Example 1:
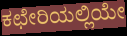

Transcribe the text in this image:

ಕಛೇರಿಯಲ್ಲಿಯೇ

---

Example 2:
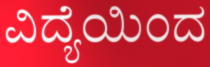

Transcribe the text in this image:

ವಿದ್ಯೆಯಿಂದ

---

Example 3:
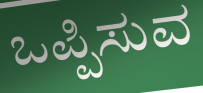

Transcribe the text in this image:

ಒಪ್ಪಿಸುವ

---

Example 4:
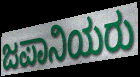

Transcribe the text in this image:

ಜಪಾನಿಯರು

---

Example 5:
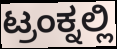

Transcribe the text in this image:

ಟ್ರಂಕ್ನಲ್ಲಿ